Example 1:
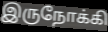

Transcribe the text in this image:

இருநோக்கி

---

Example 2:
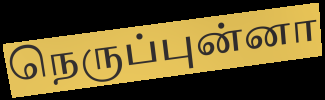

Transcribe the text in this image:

நெருப்புன்னா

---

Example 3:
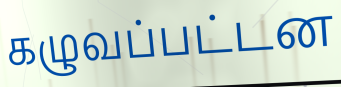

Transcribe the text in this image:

கழுவப்பட்டன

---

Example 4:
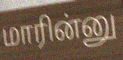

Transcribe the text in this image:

மாரின்னு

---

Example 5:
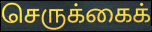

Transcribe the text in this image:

செருக்கைக்